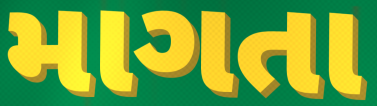
માગતા